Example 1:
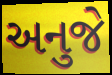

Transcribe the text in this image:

અનુજે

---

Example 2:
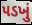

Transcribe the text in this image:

પડખું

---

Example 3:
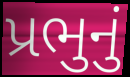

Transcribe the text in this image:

પ્રભુનું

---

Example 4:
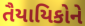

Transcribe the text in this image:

તૈયાયિકોને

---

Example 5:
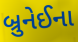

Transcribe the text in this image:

બ્રુનેઈના